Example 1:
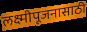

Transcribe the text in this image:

लक्ष्मीपूजनासाठी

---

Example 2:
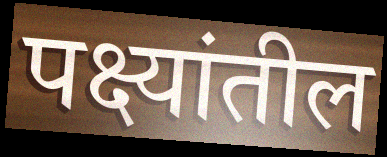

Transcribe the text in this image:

पक्ष्यांतील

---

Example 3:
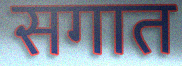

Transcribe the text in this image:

सगात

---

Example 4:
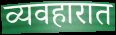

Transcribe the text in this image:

व्यवहारात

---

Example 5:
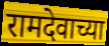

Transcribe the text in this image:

रामदेवाच्या